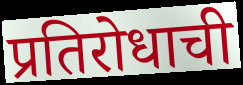
प्रतिरोधाची